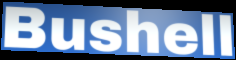
Bushell